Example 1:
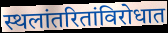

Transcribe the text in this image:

स्थलांतरितांविरोधात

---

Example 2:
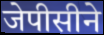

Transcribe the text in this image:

जेपीसीने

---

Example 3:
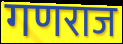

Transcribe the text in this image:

गणराज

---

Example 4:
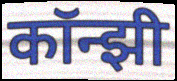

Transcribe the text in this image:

कॉन्झी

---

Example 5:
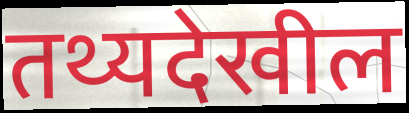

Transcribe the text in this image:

तथ्यदेखील